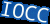
IOCC